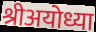
श्रीअयोध्या